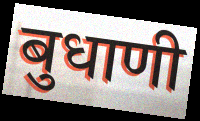
बुधाणी